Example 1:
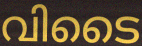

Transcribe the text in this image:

വിടൈ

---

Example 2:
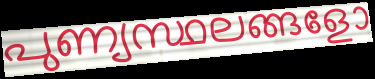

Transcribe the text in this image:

പുണ്യസ്ഥലങ്ങളോ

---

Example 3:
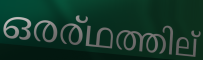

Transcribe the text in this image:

ഒരര്ഥത്തില്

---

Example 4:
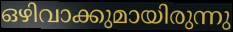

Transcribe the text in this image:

ഒഴിവാക്കുമായിരുന്നു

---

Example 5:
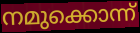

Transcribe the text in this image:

നമുക്കൊന്ന്